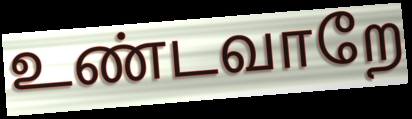
உண்டவாறே